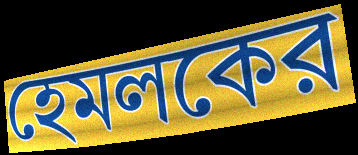
হেমলকের